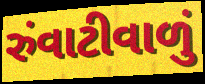
રુંવાટીવાળું